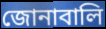
জোনাবালি